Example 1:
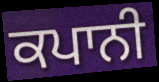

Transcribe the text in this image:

ਕਪਾਨੀ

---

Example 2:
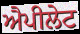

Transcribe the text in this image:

ਐਪੀਲੇਟ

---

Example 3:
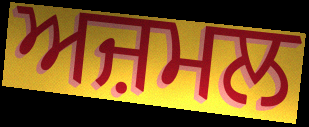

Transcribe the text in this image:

ਅਜ਼ਮਲ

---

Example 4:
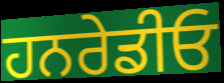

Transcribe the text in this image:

ਹਨਰੇਡੀਓ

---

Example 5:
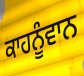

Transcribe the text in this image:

ਕਾਹਨੂੰਵਾਨ